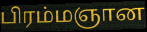
பிரம்மஞான